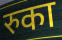
रुका